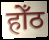
होँठ